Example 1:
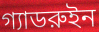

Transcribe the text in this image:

গ্যাডরুইন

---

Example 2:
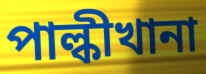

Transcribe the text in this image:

পাল্কীখানা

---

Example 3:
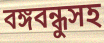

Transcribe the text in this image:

বঙ্গবন্ধুসহ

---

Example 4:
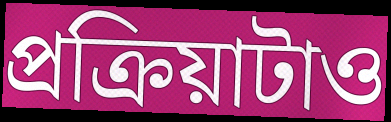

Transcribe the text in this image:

প্রক্রিয়াটাও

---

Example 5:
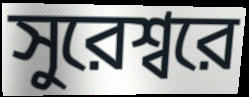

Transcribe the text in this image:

সুরেশ্বরে